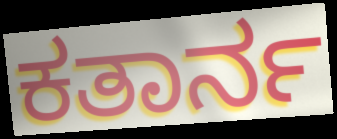
ಕತಾರ್ನ